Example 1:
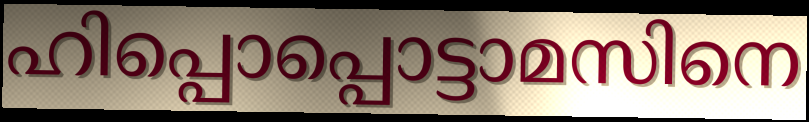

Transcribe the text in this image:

ഹിപ്പൊപ്പൊട്ടാമസിനെ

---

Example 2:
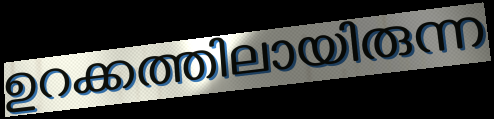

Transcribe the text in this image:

ഉറക്കത്തിലായിരുന്ന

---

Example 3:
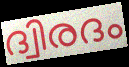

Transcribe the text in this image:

ദ്വിരദം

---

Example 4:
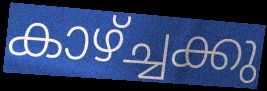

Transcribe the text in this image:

കാഴ്ച്ചക്കു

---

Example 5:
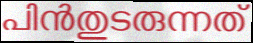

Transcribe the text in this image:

പിൻതുടരുന്നത്